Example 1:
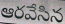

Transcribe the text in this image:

ఆరవేసిన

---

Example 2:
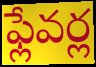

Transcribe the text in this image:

ఫ్లేవర్ల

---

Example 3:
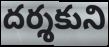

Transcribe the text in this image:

దర్శకుని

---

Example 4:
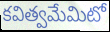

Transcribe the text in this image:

కవిత్వమేమిటో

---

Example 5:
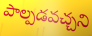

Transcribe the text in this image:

పాల్పడవచ్చని